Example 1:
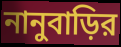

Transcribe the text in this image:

নানুবাড়ির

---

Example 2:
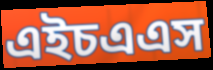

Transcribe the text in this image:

এইচএএস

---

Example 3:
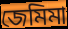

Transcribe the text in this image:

জেমিমা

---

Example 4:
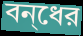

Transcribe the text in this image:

বন্‌ধের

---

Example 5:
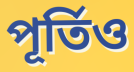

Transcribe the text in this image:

পূর্তিও